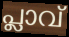
പ്ലാവ്